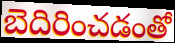
బెదిరించడంతో